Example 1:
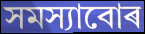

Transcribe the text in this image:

সমস্যাবোৰ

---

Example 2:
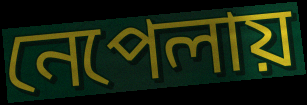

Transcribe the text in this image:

নেপেলায়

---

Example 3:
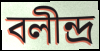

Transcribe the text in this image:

বলীন্দ্ৰ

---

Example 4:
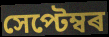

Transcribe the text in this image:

সেপ্টেম্বৰ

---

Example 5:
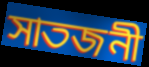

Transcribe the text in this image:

সাতজনী